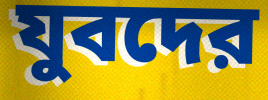
যুবদের